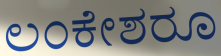
ಲಂಕೇಶರೂ